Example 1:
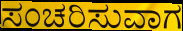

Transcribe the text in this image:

ಸಂಚರಿಸುವಾಗ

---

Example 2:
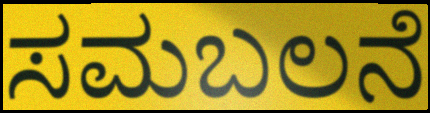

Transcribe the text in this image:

ಸಮಬಲನೆ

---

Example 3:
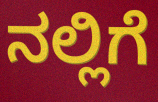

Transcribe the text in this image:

ನಲ್ಲಿಗೆ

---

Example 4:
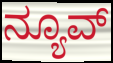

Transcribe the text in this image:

ನ್ಯೂವ್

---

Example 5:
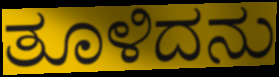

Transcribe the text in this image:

ತೂಳಿದನು